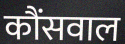
कौंसवाल